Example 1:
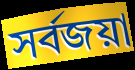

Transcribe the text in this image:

সৰ্বজয়া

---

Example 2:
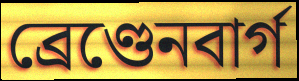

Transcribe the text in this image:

ব্ৰেণ্ডেনবাৰ্গ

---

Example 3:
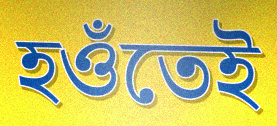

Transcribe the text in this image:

হওঁতেই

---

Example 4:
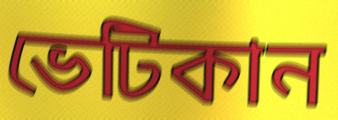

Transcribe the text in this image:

ভেটিকান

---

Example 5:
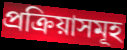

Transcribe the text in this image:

প্ৰক্ৰিয়াসমূহ